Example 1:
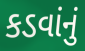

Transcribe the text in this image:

કડવાંનું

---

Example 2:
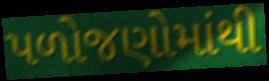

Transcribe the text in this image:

પળોજણોમાંથી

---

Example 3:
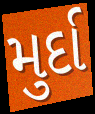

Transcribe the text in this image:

મુર્દા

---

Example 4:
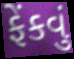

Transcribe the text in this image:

ફેંકવું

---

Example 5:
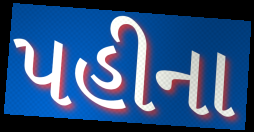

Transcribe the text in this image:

પહીના